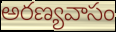
అరణ్యవాసం